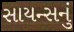
સાયન્સનું